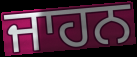
ਜਾਹਨ